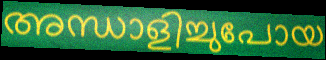
അന്ധാളിച്ചുപോയ